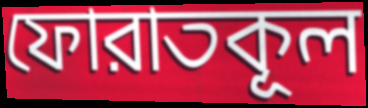
ফোরাতকূল